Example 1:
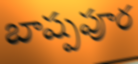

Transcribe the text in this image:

బాష్పపూర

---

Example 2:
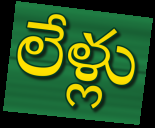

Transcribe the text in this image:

లేళ్లు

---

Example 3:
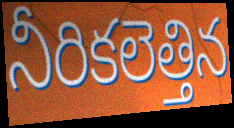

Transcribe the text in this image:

నీరికలెత్తిన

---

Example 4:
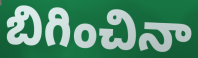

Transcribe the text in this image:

బిగించినా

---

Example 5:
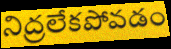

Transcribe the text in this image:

నిద్రలేకపోవడం